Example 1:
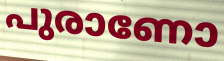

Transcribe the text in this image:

പുരാണോ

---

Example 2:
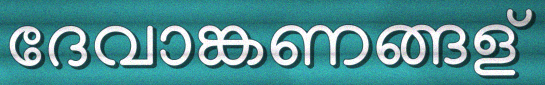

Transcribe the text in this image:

ദേവാങ്കണങ്ങള്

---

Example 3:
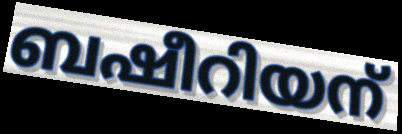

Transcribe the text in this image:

ബഷീറിയന്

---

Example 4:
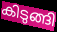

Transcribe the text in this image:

കിടുങ്ങി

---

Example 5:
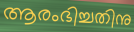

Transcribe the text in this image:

ആരംഭിച്ചതിനു